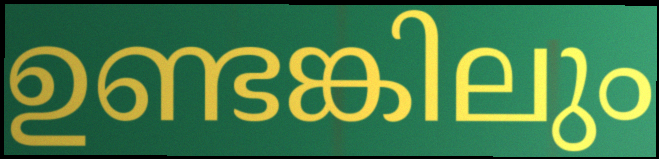
ഉണ്ടങ്കിലും